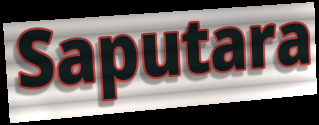
Saputara